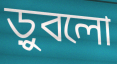
ড়ুবলো